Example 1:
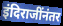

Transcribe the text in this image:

इंदिराजींनंतर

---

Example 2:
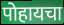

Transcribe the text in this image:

पोहायचा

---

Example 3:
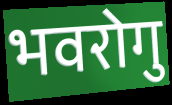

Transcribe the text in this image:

भवरोगु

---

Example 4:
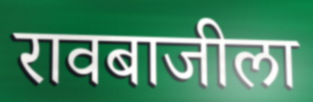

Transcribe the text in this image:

रावबाजीला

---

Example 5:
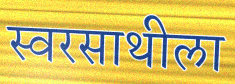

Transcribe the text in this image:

स्वरसाथीला